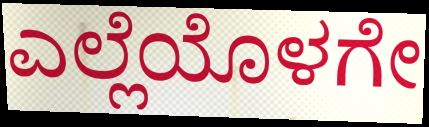
ಎಲ್ಲೆಯೊಳಗೇ